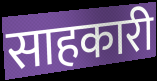
साहकारी